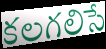
కలగలిసే